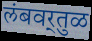
लंबवर्तुळ